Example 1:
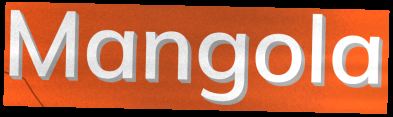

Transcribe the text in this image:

Mangola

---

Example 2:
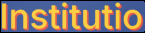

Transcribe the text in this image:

Institutio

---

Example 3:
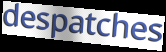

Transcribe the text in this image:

despatches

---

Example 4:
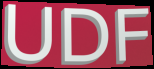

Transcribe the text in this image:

UDF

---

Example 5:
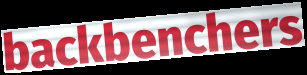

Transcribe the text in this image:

backbenchers